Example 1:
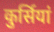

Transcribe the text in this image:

कुर्सियां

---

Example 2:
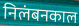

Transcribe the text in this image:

निलंबनकाल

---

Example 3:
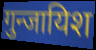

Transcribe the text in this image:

गुन्जायिश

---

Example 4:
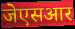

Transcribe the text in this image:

जेएसआर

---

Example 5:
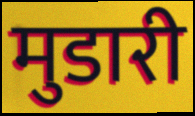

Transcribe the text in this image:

मुडारी